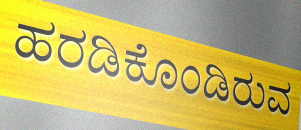
ಹರಡಿಕೊಂಡಿರುವ